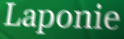
Laponie